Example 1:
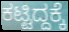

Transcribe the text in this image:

ಕಟ್ಟಿದ್ದಕ್ಕೆ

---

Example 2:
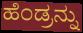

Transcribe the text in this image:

ಹೆಂಡ್ರನ್ನು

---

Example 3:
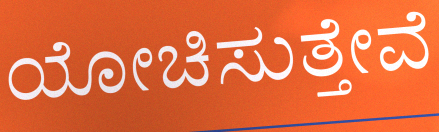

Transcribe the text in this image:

ಯೋಚಿಸುತ್ತೇವೆ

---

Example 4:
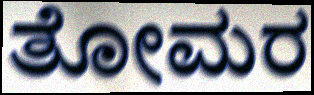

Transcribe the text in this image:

ತೋಮರ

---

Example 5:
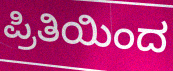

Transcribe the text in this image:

ಪ್ರಿತಿಯಿಂದ